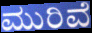
ಮುರಿವೆ